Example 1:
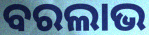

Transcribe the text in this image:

ବରଲାଭ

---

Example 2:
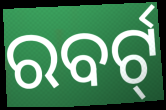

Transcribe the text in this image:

ରବର୍ଟ୍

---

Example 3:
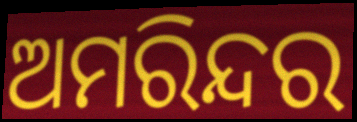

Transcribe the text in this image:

ଅମରିନ୍ଦର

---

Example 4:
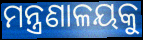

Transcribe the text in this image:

ମନ୍ତ୍ରଣାଳୟକୁ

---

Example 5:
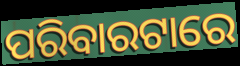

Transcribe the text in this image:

ପରିବାରଟାରେ